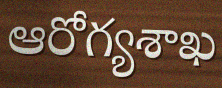
ఆరోగ్యశాఖ